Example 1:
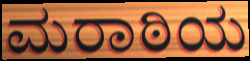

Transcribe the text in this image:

ಮರಾಠಿಯ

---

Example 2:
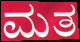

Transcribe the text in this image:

ಮತ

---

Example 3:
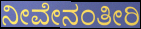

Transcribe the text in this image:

ನೀವೇನಂತೀರಿ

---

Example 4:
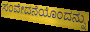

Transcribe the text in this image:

ಸಂವೇದನೆಯೊಂದನ್ನು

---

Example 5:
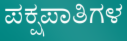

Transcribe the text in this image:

ಪಕ್ಷಪಾತಿಗಳ